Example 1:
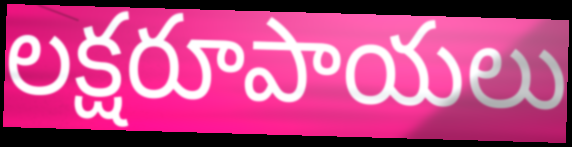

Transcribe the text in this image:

లక్షరూపాయలు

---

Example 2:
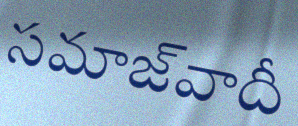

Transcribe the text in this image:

సమాజ్‌వాదీ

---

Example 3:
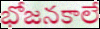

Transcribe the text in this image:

భోజనకాలే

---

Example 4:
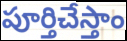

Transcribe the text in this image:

పూర్తిచేస్తాం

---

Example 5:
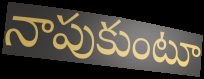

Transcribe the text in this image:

నాపుకుంటూ